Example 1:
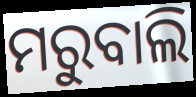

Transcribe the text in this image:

ମରୁବାଲି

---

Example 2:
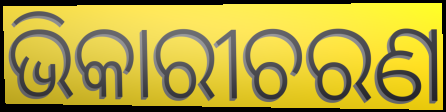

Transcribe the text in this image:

ଭିକାରୀଚରଣ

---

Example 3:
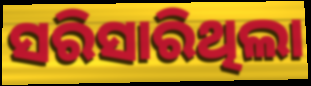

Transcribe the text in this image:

ସରିସାରିଥିଲା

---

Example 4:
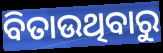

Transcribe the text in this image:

ବିତାଉଥିବାରୁ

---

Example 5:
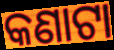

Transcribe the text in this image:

କଣାଟା